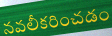
నవలీకరించడం